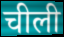
चीली